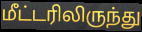
மீட்டரிலிருந்து